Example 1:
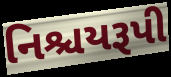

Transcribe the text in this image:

નિશ્ચયરૂપી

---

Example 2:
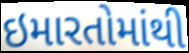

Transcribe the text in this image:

ઇમારતોમાંથી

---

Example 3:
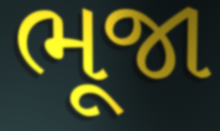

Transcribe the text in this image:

ભૂજા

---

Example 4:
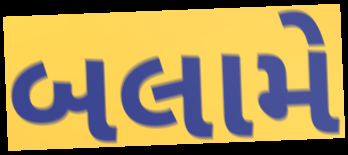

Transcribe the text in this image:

બલામે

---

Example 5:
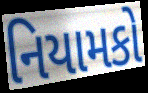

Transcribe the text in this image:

નિયામકો